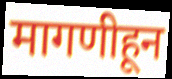
मागणीहून